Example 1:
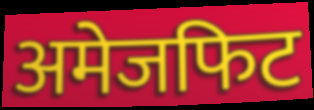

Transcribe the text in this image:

अमेजफिट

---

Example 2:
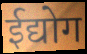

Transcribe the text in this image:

ईद्योग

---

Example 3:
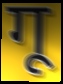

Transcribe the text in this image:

गू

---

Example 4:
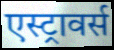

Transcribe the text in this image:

एस्ट्रावर्स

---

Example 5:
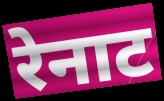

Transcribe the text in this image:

रेनाट